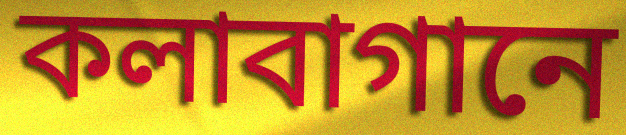
কলাবাগানে